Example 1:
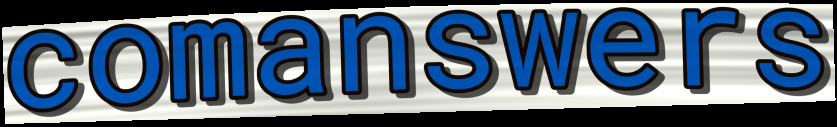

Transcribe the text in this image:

comanswers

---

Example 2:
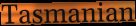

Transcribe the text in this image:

Tasmanian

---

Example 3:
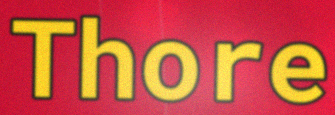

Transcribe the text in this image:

Thore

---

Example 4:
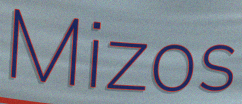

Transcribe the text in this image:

Mizos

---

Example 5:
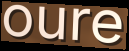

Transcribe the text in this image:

oure